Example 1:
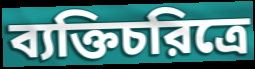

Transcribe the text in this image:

ব্যক্তিচরিত্রে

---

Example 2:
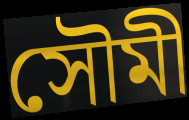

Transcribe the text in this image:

সৌমী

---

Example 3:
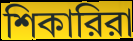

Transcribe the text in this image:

শিকারিরা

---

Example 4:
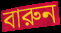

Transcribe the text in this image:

বারুন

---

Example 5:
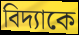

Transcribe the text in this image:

বিদ্যাকে